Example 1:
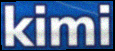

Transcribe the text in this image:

kimi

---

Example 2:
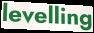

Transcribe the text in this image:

levelling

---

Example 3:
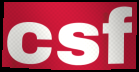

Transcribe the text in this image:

csf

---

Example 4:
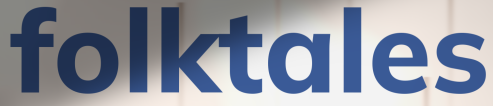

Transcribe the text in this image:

folktales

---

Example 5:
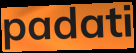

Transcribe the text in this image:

padati